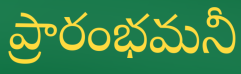
ప్రారంభమనీ